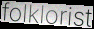
folklorist